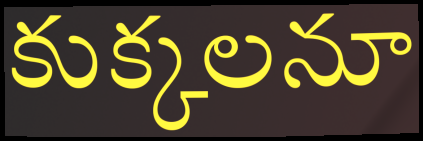
కుక్కలనూ